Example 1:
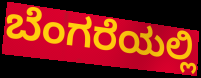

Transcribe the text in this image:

ಬೆಂಗರೆಯಲ್ಲಿ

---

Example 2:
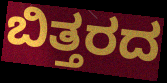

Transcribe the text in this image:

ಬಿತ್ತರದ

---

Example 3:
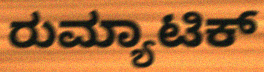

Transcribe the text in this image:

ರುಮ್ಯಾಟಿಕ್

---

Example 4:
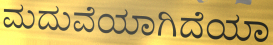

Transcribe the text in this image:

ಮದುವೆಯಾಗಿದೆಯಾ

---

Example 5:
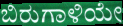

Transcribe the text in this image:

ಬಿರುಗಾಳಿಯೇ